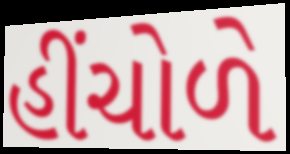
હીંચોળે